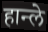
हान्ले